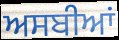
ਅਸਬੀਆਂ